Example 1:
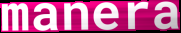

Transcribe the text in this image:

manera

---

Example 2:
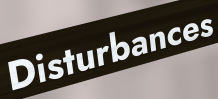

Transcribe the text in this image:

Disturbances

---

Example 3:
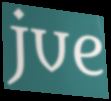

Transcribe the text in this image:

jue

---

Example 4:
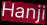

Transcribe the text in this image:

Hanji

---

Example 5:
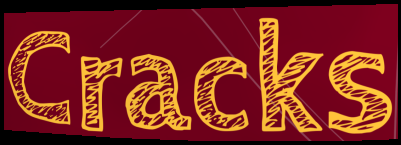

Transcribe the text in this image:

Cracks